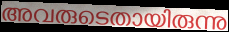
അവരുടെതായിരുന്നു